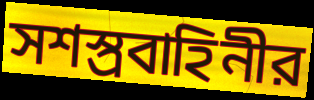
সশস্ত্রবাহিনীর